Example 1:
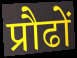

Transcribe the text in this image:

प्रौढों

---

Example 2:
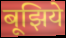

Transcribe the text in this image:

बूझिये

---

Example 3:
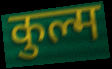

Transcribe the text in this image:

कुल्म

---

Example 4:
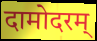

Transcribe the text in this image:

दामोदरम्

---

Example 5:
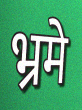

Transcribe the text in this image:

भ्रमे